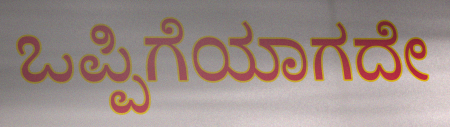
ಒಪ್ಪಿಗೆಯಾಗದೇ